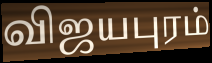
விஜயபுரம்